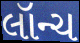
લૉન્ચ